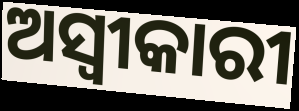
ଅସ୍ୱୀକାରୀ